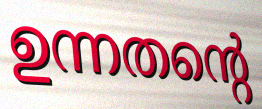
ഉന്നതന്റെ